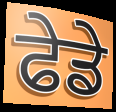
ਫੇਡੇ